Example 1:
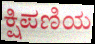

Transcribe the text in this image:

ಕ್ಷಿಪಣಿಯ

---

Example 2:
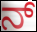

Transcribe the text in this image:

ನ್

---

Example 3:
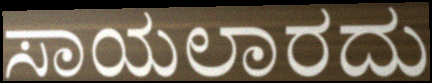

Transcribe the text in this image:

ಸಾಯಲಾರದು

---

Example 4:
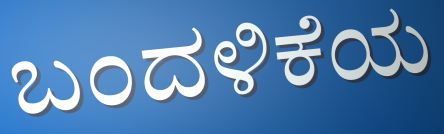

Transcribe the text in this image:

ಬಂದಳಿಕೆಯ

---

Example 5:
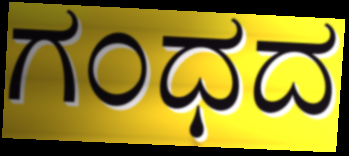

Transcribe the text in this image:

ಗಂಧದ